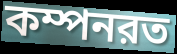
কম্পনরত